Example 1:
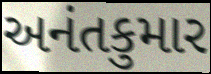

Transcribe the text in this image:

અનંતકુમાર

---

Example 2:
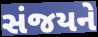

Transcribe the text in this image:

સંજયને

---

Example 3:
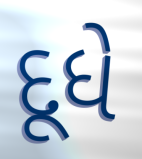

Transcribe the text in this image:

દૂધે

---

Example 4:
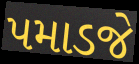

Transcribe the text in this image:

પમાડજે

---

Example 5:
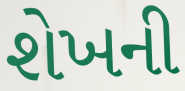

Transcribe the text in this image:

શેખની